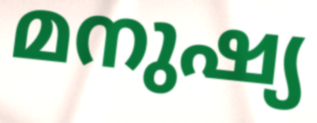
മനുഷ്യ